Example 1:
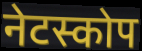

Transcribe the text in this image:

नेटस्कोप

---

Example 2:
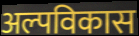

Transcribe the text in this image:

अल्पविकास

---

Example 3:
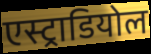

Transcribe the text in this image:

एस्ट्राडियोल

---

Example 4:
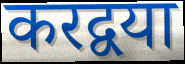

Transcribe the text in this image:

करद्वया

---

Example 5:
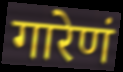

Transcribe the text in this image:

गारेणं